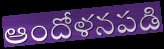
ఆందోళనపడి